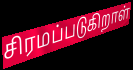
சிரமப்படுகிறாள்